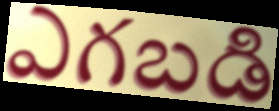
ఎగబడి